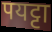
पयट्टा